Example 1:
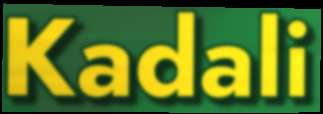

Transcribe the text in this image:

Kadali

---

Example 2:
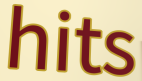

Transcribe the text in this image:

hits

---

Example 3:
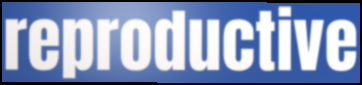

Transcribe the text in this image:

reproductive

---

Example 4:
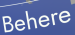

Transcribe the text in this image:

Behere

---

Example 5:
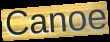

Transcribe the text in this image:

Canoe